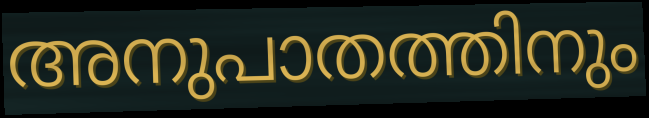
അനുപാതത്തിനും